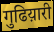
गुढिय़ारी